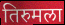
तिरुमला